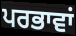
ਪਰਭਾਵਾਂ